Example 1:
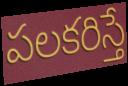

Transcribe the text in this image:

పలకరిస్తే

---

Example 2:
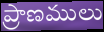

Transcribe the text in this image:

ప్రాణములు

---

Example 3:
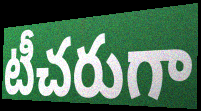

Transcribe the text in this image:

టీచరుగా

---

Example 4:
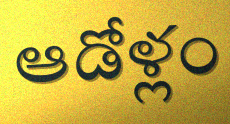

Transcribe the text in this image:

ఆడోళ్లం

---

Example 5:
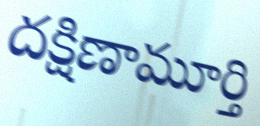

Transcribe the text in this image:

దక్షిణామూర్తి